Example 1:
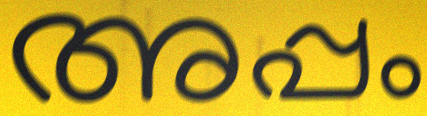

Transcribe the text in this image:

അപ്പം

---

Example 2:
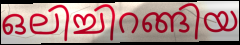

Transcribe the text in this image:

ഒലിച്ചിറങ്ങിയ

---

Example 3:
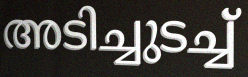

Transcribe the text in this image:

അടിച്ചുടച്ച്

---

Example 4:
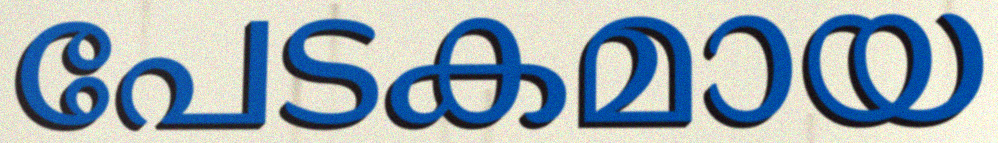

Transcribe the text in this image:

പേടകമായ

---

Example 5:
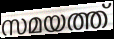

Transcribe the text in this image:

സമയത്ത്